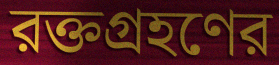
রক্তগ্রহণের